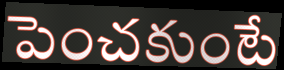
పెంచకుంటే